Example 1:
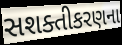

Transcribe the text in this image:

સશક્તીકરણના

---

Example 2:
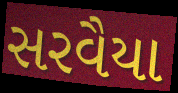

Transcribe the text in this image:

સરવૈયા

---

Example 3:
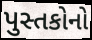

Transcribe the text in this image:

પુસ્તકોનો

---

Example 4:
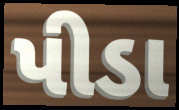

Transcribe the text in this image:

પીડા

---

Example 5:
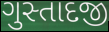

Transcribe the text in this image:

ગુસ્તાદજી